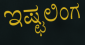
ಇಷ್ಟಲಿಂಗ